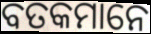
ବତକମାନେ